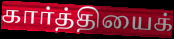
கார்த்தியைக்